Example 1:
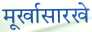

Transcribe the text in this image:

मूर्खासारखे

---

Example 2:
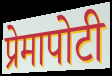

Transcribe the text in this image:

प्रेमापोटी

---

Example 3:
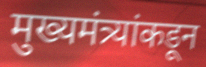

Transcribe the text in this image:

मुख्यमंत्र्यांकडून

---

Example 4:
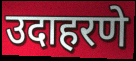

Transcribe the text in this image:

उदाहरणे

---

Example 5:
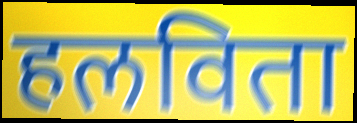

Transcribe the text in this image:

हलविता